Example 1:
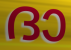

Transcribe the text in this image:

ദാ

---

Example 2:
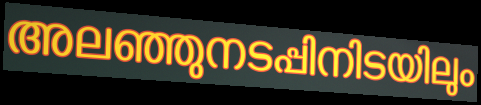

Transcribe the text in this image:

അലഞ്ഞുനടപ്പിനിടയിലും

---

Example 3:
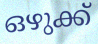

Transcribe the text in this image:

ഒഴുക്ക്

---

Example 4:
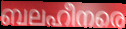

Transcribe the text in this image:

ബലഹീനരെ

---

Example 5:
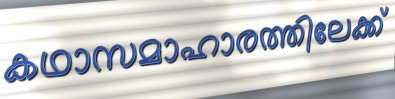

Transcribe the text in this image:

കഥാസമാഹാരത്തിലേക്ക്